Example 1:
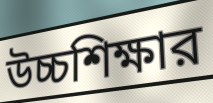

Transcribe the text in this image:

উচ্চশিক্ষার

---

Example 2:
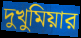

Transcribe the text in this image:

দুখুমিয়ার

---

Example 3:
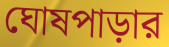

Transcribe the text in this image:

ঘোষপাড়ার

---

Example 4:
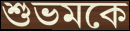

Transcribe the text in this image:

শুভমকে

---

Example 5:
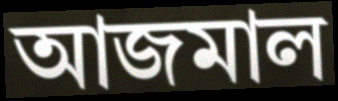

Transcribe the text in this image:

আজমাল